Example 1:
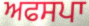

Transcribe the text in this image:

ਅਫਸਪਾ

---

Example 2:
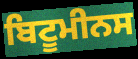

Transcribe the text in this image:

ਬਿਟੂਮੀਨਸ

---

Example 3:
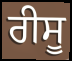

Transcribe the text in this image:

ਰੀਸੂ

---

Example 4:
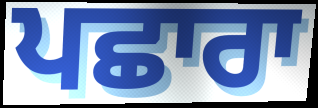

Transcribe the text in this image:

ਪਛਾਰਾ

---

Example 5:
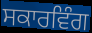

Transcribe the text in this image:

ਸਕਾਰਵਿੰਗ